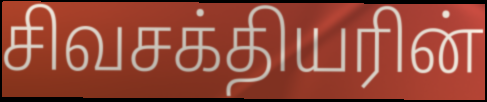
சிவசக்தியரின்